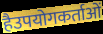
हैउपयोगकर्ताओं